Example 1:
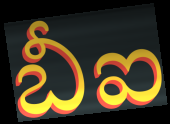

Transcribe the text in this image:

బీఐ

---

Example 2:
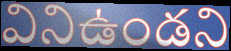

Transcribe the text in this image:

వినిఉండని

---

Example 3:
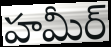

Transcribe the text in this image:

హమీర్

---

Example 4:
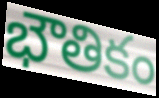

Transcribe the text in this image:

భౌతికం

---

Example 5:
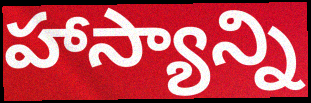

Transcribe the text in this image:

హాస్యాన్ని